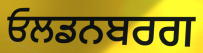
ਓਲਡਨਬਰਗ